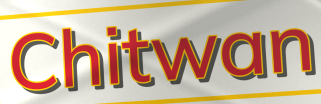
Chitwan